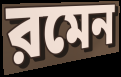
রমেন